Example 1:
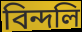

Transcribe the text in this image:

বিন্দলি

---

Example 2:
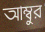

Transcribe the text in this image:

আম্বুর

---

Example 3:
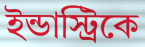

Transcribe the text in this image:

ইন্ডাস্ট্রিকে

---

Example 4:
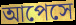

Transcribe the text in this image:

আপেসে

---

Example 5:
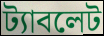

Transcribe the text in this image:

ট্যাবলেট